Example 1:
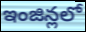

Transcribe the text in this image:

ఇంజిన్లలో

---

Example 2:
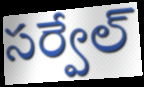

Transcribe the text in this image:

సర్వేల్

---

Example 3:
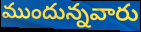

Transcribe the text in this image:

ముందున్నవారు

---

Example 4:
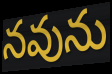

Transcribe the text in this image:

నవును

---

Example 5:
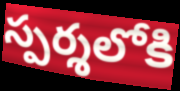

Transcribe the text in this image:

స్పర్శలోకి